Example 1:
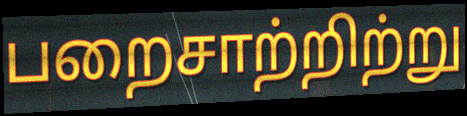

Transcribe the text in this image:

பறைசாற்றிற்று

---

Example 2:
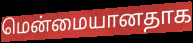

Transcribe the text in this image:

மென்மையானதாக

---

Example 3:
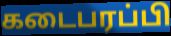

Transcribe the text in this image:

கடைபரப்பி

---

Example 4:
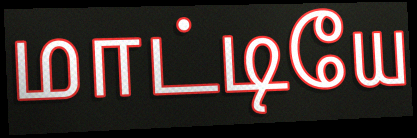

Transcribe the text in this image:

மாட்டியே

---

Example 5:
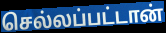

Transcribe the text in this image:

செல்லப்பட்டான்